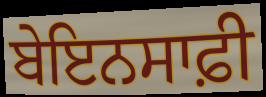
ਬੇਇਨਸਾਫ਼ੀ